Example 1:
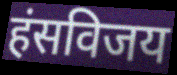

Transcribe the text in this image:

हंसविजय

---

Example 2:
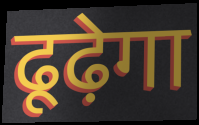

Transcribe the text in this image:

ढूढ़ेगा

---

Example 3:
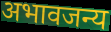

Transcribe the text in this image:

अभावजन्य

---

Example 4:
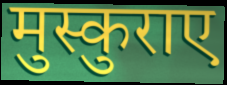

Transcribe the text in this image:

मुस्कुराए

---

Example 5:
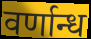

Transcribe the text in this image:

वर्णान्ध